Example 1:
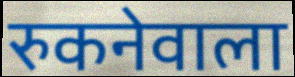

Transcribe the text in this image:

रुकनेवाला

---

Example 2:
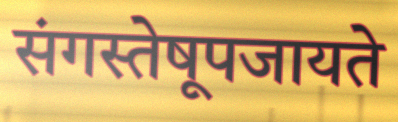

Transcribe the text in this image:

संगस्तेषूपजायते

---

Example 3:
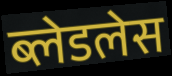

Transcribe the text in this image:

ब्लेडलेस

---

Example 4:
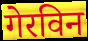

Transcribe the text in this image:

गेरविन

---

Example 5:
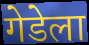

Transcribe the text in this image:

गेडेला